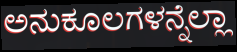
ಅನುಕೂಲಗಳನ್ನೆಲ್ಲಾ